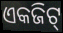
ଏକଜିଟ୍